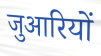
जुआरियों